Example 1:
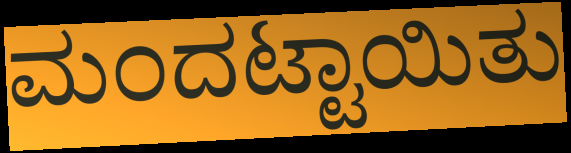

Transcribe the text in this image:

ಮಂದಟ್ಟಾಯಿತು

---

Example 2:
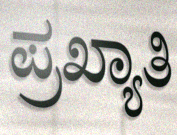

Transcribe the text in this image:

ಪ್ರಖ್ಯಾತಿ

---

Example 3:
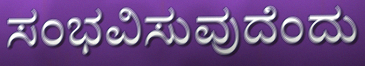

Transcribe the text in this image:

ಸಂಭವಿಸುವುದೆಂದು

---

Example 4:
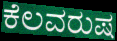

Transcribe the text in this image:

ಕೆಲವರುಷ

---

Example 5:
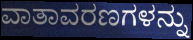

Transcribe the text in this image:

ವಾತಾವರಣಗಳನ್ನು